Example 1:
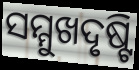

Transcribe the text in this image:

ସମ୍ମୁଖଦୃଷ୍ଟି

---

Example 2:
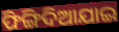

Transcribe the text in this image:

ଫିଙ୍ଗିଦିଆଯାଇ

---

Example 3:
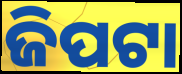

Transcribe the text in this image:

ଜିପଟା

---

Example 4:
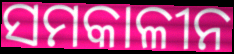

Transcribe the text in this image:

ସମକାଳୀନ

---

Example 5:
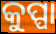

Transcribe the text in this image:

କୁପ୍ପା